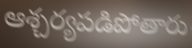
ఆశ్చర్యపడిపోతారు